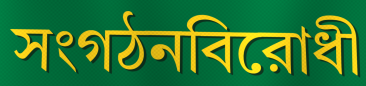
সংগঠনবিরোধী